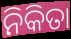
ନିକିତା